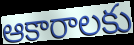
ఆకారాలకు